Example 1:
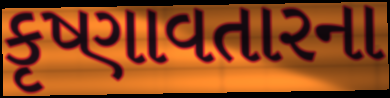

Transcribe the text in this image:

કૃષ્ણાવતારના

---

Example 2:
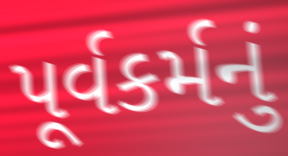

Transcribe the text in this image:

પૂર્વકર્મનું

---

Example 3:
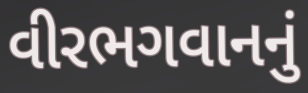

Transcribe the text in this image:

વીરભગવાનનું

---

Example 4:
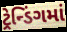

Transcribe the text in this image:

ટ્રેન્ડિંગમાં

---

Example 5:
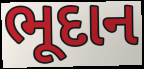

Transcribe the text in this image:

ભૂદાન